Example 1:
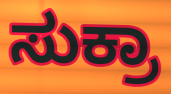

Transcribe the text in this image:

ಸುಕ್ರಾ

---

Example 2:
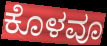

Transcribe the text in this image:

ಕೊಳವೂ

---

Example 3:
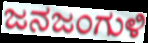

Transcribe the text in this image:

ಜನಜಂಗುಳಿ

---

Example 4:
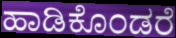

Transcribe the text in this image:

ಹಾಡಿಕೊಂಡರೆ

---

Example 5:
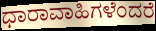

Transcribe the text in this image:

ಧಾರಾವಾಹಿಗಳೆಂದರೆ